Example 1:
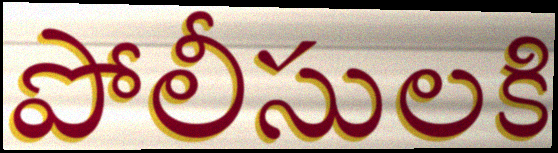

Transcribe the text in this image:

పోలీసులకి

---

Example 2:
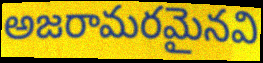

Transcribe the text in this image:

అజరామరమైనవి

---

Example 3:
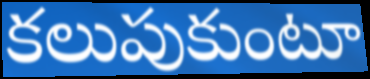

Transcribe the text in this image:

కలుపుకుంటూ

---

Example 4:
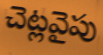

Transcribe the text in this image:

చెట్లవైపు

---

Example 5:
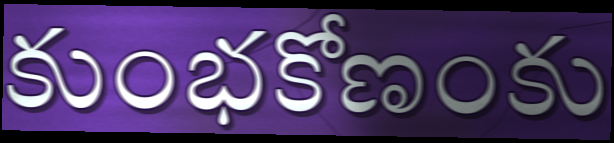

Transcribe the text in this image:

కుంభకోణంకు